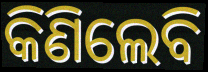
କିଣିଲେବି